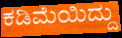
ಕಡಿಮೆಯಿದ್ದು